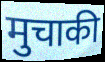
मुचाकी